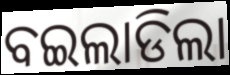
ବଇଲାଡିଲା